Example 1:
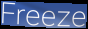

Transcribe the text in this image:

Freeze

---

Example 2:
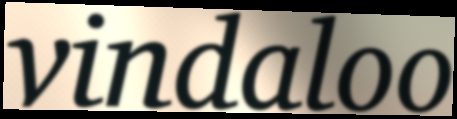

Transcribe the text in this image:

vindaloo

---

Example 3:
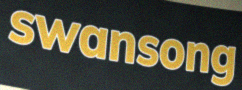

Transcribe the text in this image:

swansong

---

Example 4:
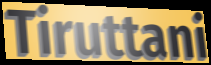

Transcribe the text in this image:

Tiruttani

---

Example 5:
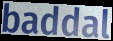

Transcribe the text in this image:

baddal